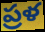
ప్రళ